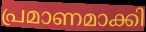
പ്രമാണമാക്കി